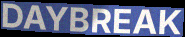
DAYBREAK